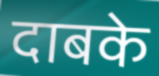
दाबके